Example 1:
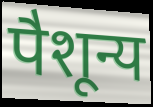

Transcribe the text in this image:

पैशून्य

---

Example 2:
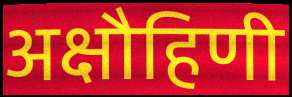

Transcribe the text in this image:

अक्षौहिणी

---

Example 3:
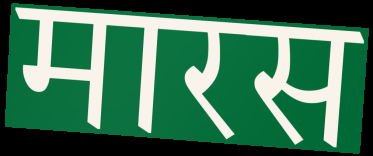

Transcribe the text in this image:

मारस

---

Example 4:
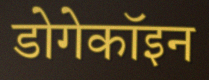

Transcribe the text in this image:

डोगेकॉइन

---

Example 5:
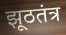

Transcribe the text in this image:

झूठतंत्र